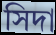
সিদা